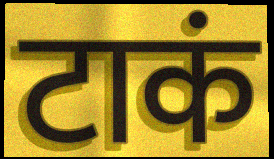
टाकं